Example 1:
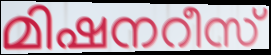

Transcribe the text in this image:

മിഷനറീസ്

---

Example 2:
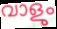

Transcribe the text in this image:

വാളും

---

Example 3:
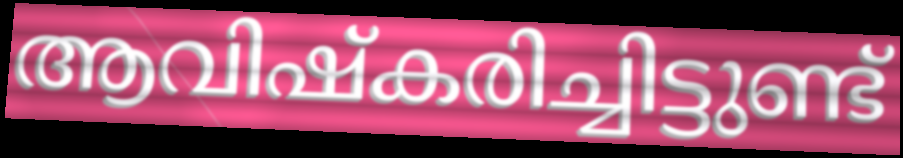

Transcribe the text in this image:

ആവിഷ്കരിച്ചിട്ടുണ്ട്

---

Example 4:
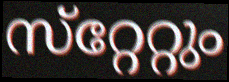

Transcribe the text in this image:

സ്‌റ്റേറ്റും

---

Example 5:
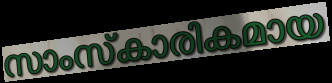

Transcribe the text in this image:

സാംസ്‌കാരികമായ